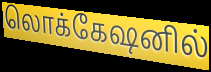
லொக்கேஷனில்